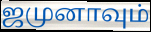
ஜமுனாவும்